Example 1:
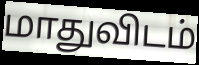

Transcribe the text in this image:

மாதுவிடம்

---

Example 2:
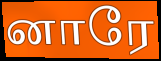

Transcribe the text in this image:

னாரே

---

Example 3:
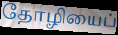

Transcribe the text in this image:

தோழியைப்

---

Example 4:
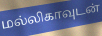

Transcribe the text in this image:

மல்லிகாவுடன்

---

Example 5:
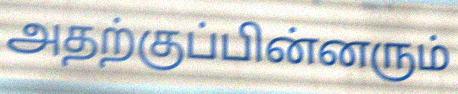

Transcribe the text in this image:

அதற்குப்பின்னரும்